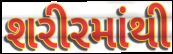
શરીરમાંથી